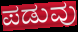
ಪಡುವು